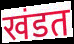
खंडत